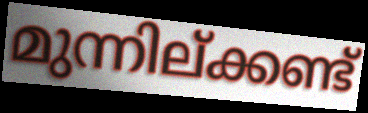
മുന്നില്ക്കണ്ട്